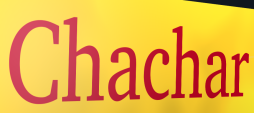
Chachar